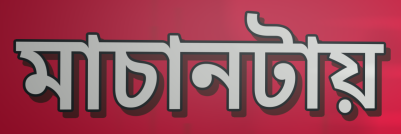
মাচানটায়